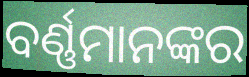
ବର୍ଣ୍ଣମାନଙ୍କର